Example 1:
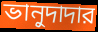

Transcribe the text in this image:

ভানুদাদার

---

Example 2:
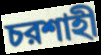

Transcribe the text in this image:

চরশাহী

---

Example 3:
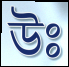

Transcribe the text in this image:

উঃ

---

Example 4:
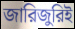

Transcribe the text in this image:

জারিজুরিই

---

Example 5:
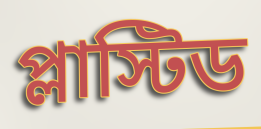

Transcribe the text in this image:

প্লাস্টিড